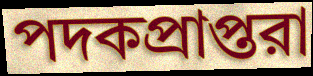
পদকপ্রাপ্তরা